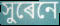
সুৰেনে